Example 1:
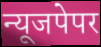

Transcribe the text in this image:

न्यूजपेपर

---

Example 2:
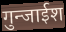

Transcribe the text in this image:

गुन्जाईश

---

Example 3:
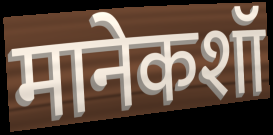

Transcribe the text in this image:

मानेकशॉ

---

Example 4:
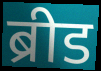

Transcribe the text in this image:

ब्रीड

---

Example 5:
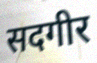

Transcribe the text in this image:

सदगीर